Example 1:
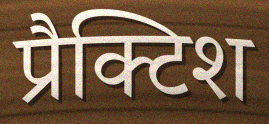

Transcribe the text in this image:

प्रैक्टिश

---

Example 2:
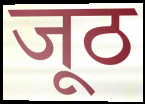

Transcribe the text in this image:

जूठ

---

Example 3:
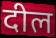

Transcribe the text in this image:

दील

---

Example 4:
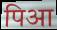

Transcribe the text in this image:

पिआ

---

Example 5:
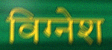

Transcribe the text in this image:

विग्‍नेश